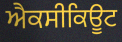
ਐਕਸੀਕਿਊਟ